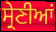
ਸ੍ਰੇਣੀਆਂ